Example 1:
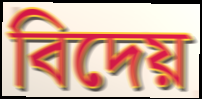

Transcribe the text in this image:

বিদেয়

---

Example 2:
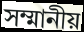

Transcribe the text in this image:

সম্মানীয়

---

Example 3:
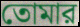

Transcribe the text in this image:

তোমার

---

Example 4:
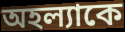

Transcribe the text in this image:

অহল্যাকে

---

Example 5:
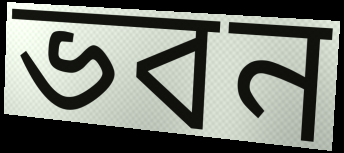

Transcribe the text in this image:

ভবন